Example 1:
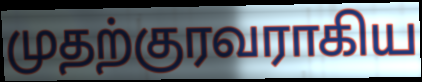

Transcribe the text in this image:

முதற்குரவராகிய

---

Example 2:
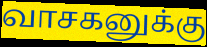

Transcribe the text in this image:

வாசகனுக்கு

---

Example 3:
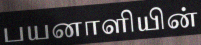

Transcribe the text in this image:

பயனாளியின்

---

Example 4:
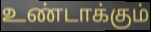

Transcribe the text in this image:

உண்டாக்கும்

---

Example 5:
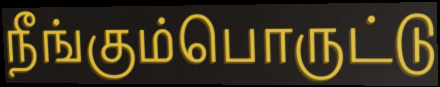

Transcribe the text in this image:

நீங்கும்பொருட்டு